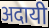
अदायी